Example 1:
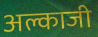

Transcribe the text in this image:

अल्काजी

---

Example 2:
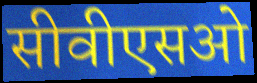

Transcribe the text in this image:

सीवीएसओ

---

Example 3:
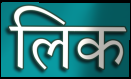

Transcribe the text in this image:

लिक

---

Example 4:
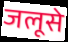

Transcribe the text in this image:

जलूसे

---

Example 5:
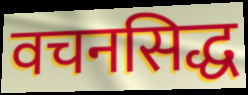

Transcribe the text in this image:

वचनसिद्ध